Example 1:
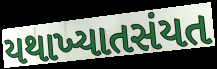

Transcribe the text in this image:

યથાખ્યાતસંયત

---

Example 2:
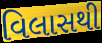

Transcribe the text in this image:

વિલાસથી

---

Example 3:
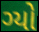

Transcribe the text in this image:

ગ્યો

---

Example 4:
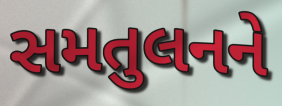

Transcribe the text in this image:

સમતુલનને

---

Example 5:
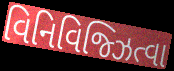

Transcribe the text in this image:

વિનિવિજ્ઝિત્વા